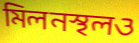
মিলনস্থলও